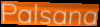
Palsana